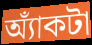
অ্যাঁকটা